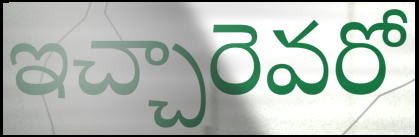
ఇచ్చారెవరో